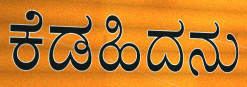
ಕೆಡಹಿದನು